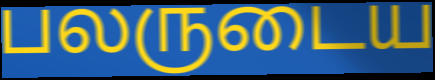
பலருடைய